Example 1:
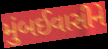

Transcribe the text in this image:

મુંબઈવાસીને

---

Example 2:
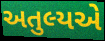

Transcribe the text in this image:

અતુલ્યએ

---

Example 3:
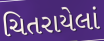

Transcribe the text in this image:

ચિતરાયેલાં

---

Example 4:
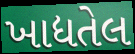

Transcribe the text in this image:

ખાદ્યતેલ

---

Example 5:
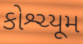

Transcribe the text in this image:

કોશ્ચ્યૂમ